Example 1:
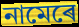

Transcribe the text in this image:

নামেৰে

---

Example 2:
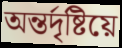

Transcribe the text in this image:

অন্তৰ্দৃষ্টিয়ে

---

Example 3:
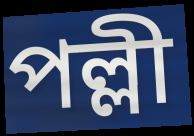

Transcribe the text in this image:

পল্লী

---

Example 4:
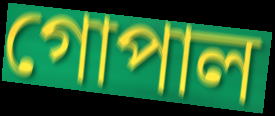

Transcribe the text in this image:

গোপাল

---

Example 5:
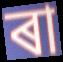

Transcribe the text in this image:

ৰা